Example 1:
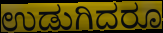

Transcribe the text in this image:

ಉಡುಗಿದರೂ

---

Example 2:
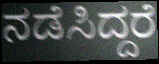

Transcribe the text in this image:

ನಡೆಸಿದ್ದರೆ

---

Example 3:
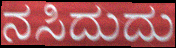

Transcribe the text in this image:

ನಸಿದುದು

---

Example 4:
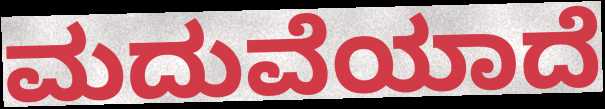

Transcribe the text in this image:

ಮದುವೆಯಾದೆ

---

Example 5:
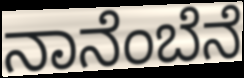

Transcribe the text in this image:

ನಾನೆಂಬೆನೆ